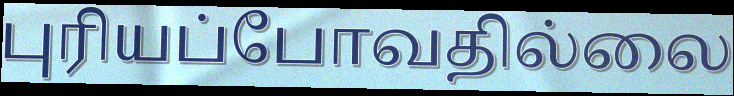
புரியப்போவதில்லை